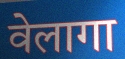
वेलागा